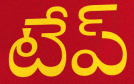
టేప్